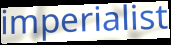
imperialist